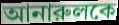
আনারুলকে